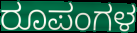
ರೂಪಂಗಳ